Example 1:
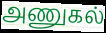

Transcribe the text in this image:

அணுகல்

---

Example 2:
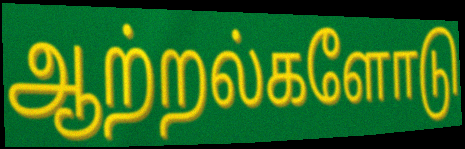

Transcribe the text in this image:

ஆற்றல்களோடு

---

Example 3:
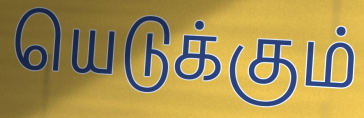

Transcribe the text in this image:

யெடுக்கும்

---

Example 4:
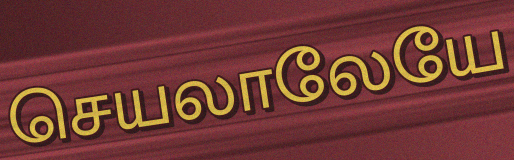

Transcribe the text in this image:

செயலாலேயே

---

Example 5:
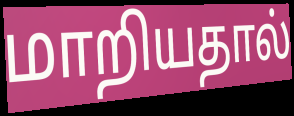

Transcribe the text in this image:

மாறியதால்